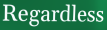
Regardless